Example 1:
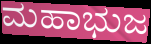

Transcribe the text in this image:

ಮಹಾಭುಜ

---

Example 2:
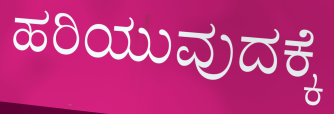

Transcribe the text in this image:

ಹರಿಯುವುದಕ್ಕೆ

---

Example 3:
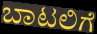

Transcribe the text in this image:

ಬಾಟಲಿಗೆ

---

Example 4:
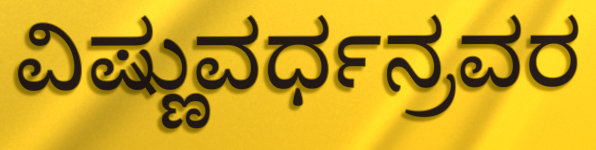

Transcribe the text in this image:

ವಿಷ್ಣುವರ್ಧನ್ರವರ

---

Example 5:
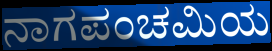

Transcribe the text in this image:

ನಾಗಪಂಚಮಿಯ